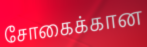
சோகைக்கான